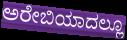
ಅರೇಬಿಯಾದಲ್ಲೂ